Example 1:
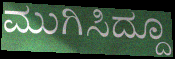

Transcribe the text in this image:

ಮುಗಿಸಿದ್ದೂ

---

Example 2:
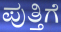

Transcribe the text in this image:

ಪುತ್ತಿಗೆ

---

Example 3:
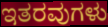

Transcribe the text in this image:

ಇತರವುಗಳು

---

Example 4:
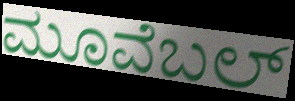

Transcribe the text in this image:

ಮೂವೆಬಲ್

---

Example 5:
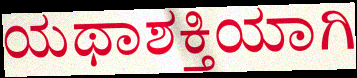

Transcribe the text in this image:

ಯಥಾಶಕ್ತಿಯಾಗಿ